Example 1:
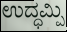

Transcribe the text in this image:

ಉದ್ಧಮ್ಪಿ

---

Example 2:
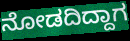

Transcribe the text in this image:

ನೋಡದಿದ್ದಾಗ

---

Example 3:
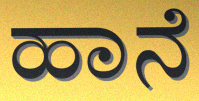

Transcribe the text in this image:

ಹಾನೆ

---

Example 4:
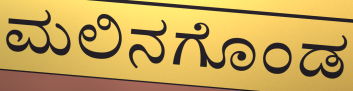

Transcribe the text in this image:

ಮಲಿನಗೊಂಡ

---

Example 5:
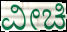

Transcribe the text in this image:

ವೀಚಿ